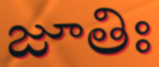
జూతిః